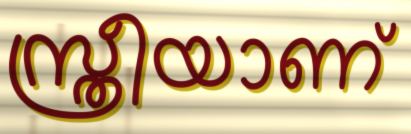
സ്ത്രീയാണ്